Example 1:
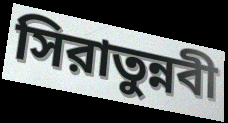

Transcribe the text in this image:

সিরাতুন্নবী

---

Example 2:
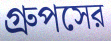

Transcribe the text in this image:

গ্রুপসের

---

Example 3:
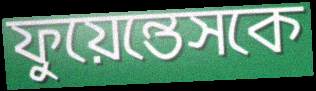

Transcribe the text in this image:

ফুয়েন্তেসকে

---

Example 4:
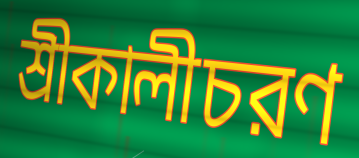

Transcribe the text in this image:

শ্রীকালীচরণ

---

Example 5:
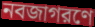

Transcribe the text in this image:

নবজাগরণে